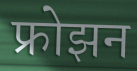
फ्रोझन